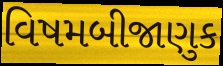
વિષમબીજાણુક